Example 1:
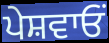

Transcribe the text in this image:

ਪੇਸ਼ਵਾਓਂ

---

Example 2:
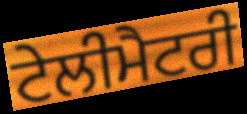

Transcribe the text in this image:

ਟੇਲੀਮੈਟਰੀ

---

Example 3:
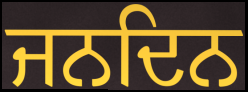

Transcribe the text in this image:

ਜਨਦਿਨ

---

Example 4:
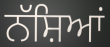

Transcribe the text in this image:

ਨੱਸ਼ਿਆਂ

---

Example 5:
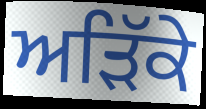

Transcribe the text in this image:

ਅੜਿੱਕੇ